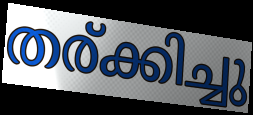
തര്ക്കിച്ചു